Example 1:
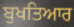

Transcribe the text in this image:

ਬੁਖਤਿਆਰ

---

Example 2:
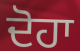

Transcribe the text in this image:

ਦੋਹਾ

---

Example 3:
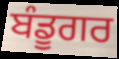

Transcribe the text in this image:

ਬੰਡੂਗਰ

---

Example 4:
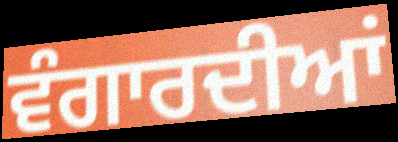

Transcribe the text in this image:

ਵੰਗਾਰਦੀਆਂ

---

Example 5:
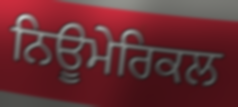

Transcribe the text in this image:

ਨਿਊਮੇਰਿਕਲ